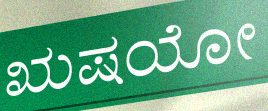
ಋಷಯೋ